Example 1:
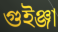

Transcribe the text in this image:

গুইঞ্জা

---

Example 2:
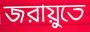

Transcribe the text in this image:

জরায়ুতে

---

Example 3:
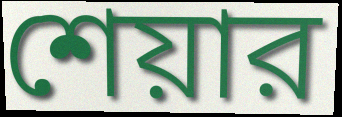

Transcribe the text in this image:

শেয়ার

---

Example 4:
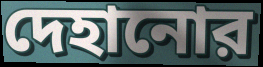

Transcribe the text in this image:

দেহানোর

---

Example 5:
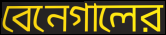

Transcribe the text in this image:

বেনেগালের